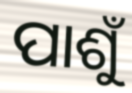
ପାଶୁଁ